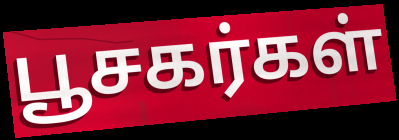
பூசகர்கள்